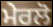
ਮੇਰਲੋ